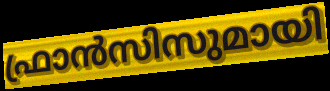
ഫ്രാൻസിസുമായി